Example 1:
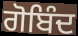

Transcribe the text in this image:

ਗੋਬਿੰਦ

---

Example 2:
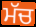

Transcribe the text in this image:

ਮੱਚ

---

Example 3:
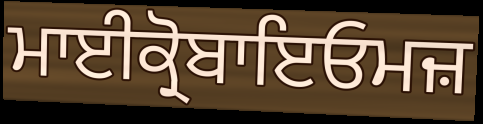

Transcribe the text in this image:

ਮਾਈਕ੍ਰੋਬਾਇਓਮਜ਼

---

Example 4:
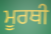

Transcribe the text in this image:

ਮੂਰਥੀ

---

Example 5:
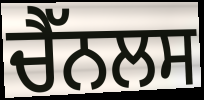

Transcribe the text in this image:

ਚੈੱਨਲਸ